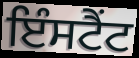
ਇੰਸਟੈਂਟ